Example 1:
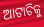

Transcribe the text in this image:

ଆଟାଚିକୁ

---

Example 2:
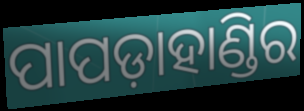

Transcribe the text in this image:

ପାପଡ଼ାହାଣ୍ଡିର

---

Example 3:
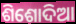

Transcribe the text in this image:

ଶିଶୋଦିଆ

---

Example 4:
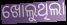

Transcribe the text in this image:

ଖୋଲୁଥିଲା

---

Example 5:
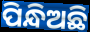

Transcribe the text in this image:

ପିନ୍ଧିଅଛି